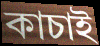
কাচাই